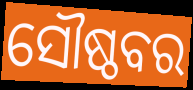
ସୌଷ୍ଠବର